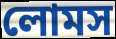
লোমস